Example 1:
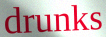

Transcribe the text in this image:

drunks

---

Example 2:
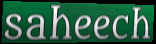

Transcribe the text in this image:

saheech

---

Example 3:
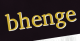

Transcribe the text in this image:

bhenge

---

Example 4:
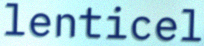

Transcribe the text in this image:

lenticel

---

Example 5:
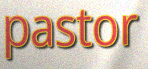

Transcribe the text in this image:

pastor